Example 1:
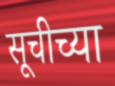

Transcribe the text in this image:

सूचीच्या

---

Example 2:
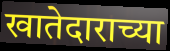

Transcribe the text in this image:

खातेदाराच्या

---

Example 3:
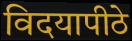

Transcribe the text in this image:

विदयापीठे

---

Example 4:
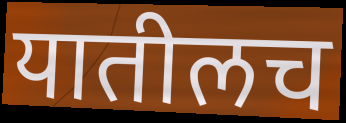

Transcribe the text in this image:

यातीलच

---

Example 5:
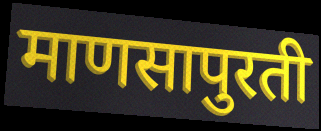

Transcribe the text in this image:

माणसापुरती